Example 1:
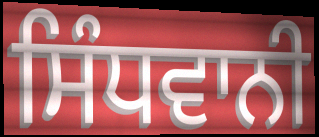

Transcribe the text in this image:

ਸਿੰਧਵਾਨੀ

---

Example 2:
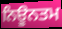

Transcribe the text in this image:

ਨਿਊਨਤਮ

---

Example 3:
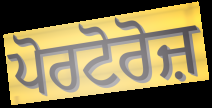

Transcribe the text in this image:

ਪੋਰਟੋਰੋਜ਼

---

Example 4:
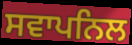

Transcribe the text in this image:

ਸਵਾਪਨਿਲ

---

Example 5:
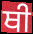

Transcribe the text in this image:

ਥੀ